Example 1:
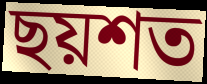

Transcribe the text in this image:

ছয়শত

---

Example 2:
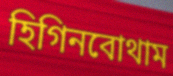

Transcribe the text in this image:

হিগিনবোথাম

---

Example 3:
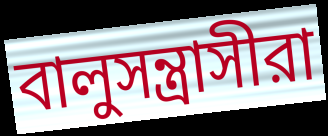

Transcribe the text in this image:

বালুসন্ত্রাসীরা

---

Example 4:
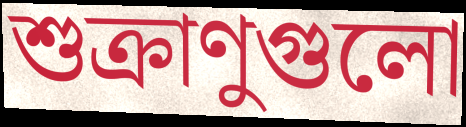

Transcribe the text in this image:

শুক্রাণুগুলো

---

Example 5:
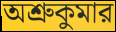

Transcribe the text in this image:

অশ্রুকুমার